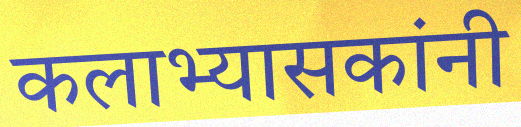
कलाभ्यासकांनी